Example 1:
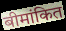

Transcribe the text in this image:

बीमांकित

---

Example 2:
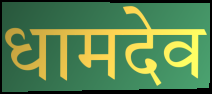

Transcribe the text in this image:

धामदेव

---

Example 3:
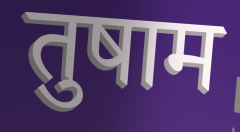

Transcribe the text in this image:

तुषाम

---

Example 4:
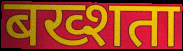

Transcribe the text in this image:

बख्शता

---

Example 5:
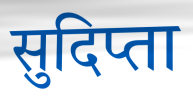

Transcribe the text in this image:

सुदिप्ता